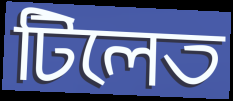
টিলেত